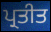
ਪ੍ਰਤੀਤ